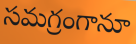
సమగ్రంగానూ